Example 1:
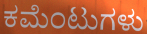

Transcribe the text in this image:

ಕಮೆಂಟುಗಳು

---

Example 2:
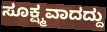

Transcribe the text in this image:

ಸೂಕ್ಷ್ಮವಾದದ್ದು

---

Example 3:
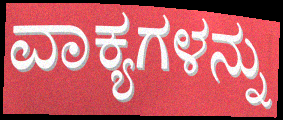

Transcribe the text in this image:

ವಾಕ್ಯಗಳನ್ನು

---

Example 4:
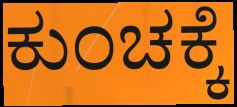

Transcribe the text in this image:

ಕುಂಚಕ್ಕೆ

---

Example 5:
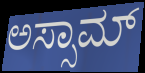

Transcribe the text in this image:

ಅಸ್ಸಾಮ್